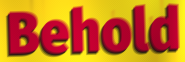
Behold